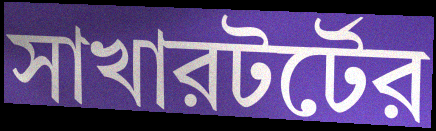
সাখারটর্টের